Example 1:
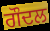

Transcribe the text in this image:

ਗੌਦਲ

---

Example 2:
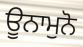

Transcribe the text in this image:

ਊਨਾਮੁਨੋ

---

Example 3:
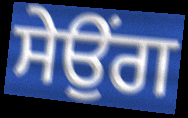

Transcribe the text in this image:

ਸੇਉਂਗ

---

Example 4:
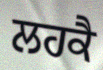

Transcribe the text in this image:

ਲਹਕੈ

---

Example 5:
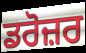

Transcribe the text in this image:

ਡਰੋਜ਼ਰ